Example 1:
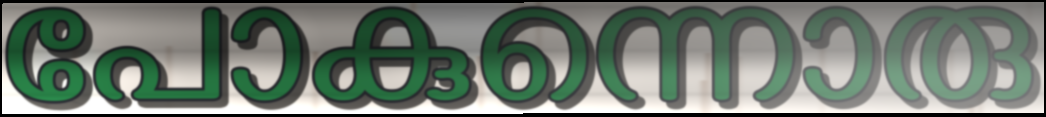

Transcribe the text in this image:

പോകുന്നൊരു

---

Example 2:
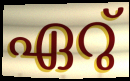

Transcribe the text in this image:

ഏറു്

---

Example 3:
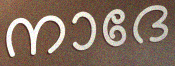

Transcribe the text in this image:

നാദേ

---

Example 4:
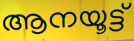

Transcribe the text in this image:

ആനയൂട്ട്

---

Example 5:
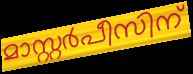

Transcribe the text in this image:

മാസ്റ്റർപീസിന്